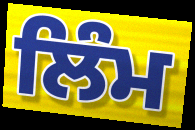
ਲਿੰਮ